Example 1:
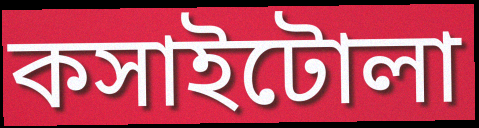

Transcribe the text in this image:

কসাইটোলা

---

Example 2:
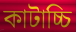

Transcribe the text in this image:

কাটাচ্চি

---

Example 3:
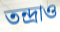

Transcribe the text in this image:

তন্দ্রাও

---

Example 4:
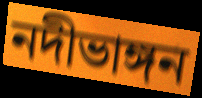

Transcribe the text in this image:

নদীভাঙ্গন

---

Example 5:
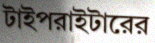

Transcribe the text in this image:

টাইপরাইটারের